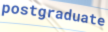
postgraduate